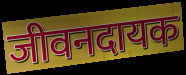
जीवनदायक